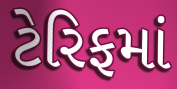
ટેરિફમાં